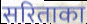
सरिताका